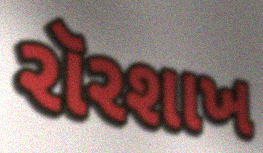
રૉરશાખ